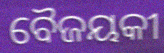
ବୈଜୟକୀ